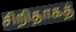
சிறிதாகத்